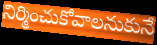
నిర్మించుకోవాలనుకునే